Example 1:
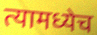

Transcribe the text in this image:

त्यामध्येच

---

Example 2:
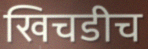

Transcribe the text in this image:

खिचडीच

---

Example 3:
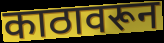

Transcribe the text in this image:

काठावरून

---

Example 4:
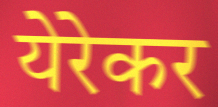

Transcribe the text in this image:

येरेकर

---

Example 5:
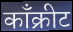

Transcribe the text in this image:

काँक्रीट